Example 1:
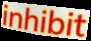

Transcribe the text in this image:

inhibit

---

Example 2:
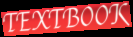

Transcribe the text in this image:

TEXTBOOK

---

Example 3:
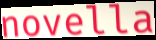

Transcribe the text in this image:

novella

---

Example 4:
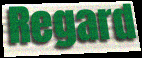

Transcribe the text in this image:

Regard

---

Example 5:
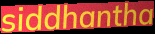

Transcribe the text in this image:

siddhantha